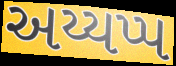
અય્યપ્પ